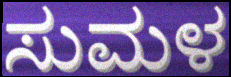
ಸುಮಳ